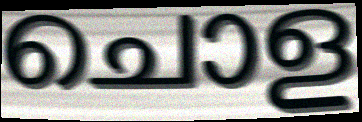
ചൊള